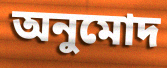
অনুমোদ